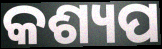
କଶ୍ୟପ